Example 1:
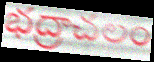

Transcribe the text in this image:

భద్రాచలం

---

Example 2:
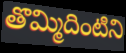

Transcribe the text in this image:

తొమ్మిదింటిని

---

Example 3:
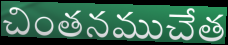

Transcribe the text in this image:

చింతనముచేత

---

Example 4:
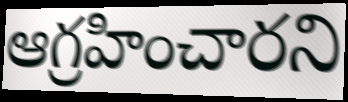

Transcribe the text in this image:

ఆగ్రహించారని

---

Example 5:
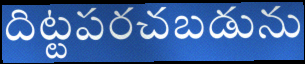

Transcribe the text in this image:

దిట్టపరచబడును